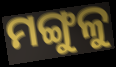
ମଙ୍ଗୁଳୁ